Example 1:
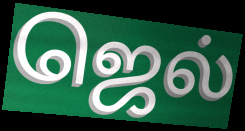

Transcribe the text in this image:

ஜெல்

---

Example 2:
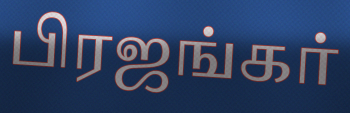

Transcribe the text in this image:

பிரஜங்கர்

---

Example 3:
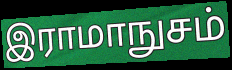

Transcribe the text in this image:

இராமாநுசம்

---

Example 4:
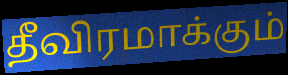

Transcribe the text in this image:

தீவிரமாக்கும்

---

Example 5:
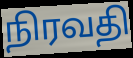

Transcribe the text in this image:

நிரவதி